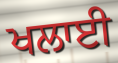
ਖਲਾਈ